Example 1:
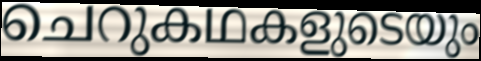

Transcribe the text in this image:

ചെറുകഥകളുടെയും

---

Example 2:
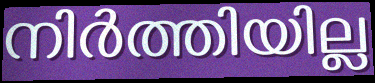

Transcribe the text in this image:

നിർത്തിയില്ല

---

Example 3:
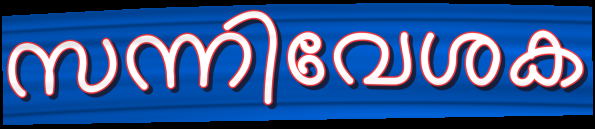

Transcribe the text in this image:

സന്നിവേശക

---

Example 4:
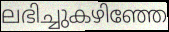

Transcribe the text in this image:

ലഭിച്ചുകഴിഞ്ഞേ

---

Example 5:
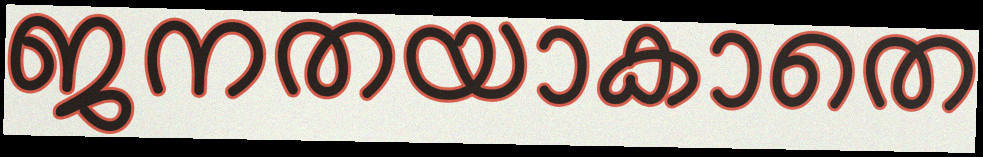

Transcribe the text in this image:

ജനതയാകാതെ